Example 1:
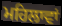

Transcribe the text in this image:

ਮਹਿਲਾਵਾਂ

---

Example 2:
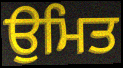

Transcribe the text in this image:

ਉਮਿਤ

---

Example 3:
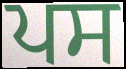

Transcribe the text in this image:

ਪਸ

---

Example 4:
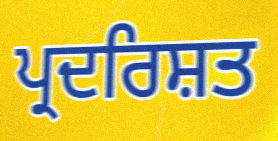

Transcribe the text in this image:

ਪ੍ਰਦਰਿਸ਼ਤ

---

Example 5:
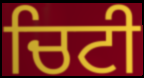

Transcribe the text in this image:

ਚਿਟੀ